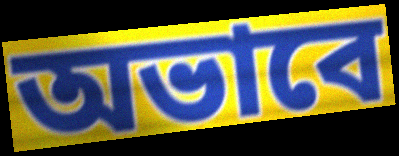
অভাবে